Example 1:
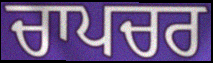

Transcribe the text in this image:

ਚਾਪਚਰ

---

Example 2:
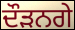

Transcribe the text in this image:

ਦੌੜਨਗੇ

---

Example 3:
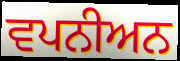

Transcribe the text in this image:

ਵਪਨੀਅਨ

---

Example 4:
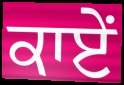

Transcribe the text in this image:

ਕਾਏਂ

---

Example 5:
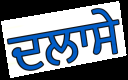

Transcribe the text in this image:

ਦਲਾਸੇ